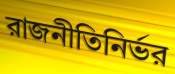
রাজনীতিনির্ভর